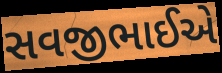
સવજીભાઈએ